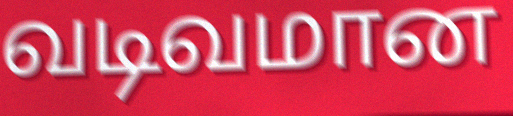
வடிவமான